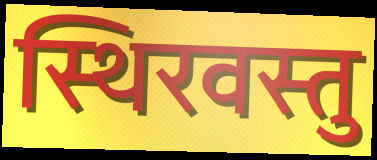
स्थिरवस्तु